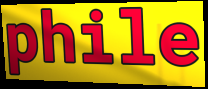
phile